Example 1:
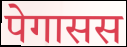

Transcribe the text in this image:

पेगासस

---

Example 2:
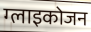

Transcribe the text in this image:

ग्लाइकोजन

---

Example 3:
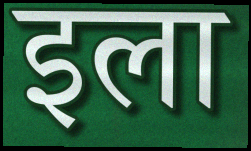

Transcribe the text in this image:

इला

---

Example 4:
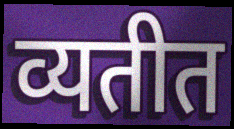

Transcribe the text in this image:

व्यतीत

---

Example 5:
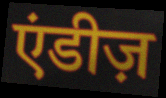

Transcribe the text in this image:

एंडीज़